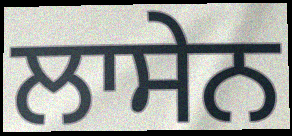
ਲਾਸੇਨ